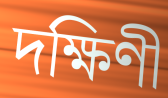
দক্ষিণী